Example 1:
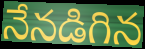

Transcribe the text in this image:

నేనడిగిన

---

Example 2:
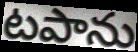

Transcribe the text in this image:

టపాను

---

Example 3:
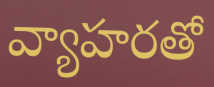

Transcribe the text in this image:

వ్యాహరతో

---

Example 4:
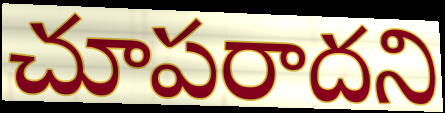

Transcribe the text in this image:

చూపరాదని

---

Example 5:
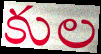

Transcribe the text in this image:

కుల